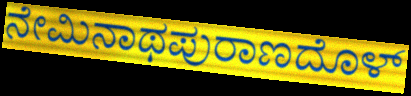
ನೇಮಿನಾಥಪುರಾಣದೊಳ್